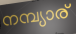
നമ്പ്യാര്